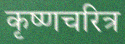
कृष्णचरित्र